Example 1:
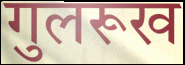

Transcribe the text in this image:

गुलरूख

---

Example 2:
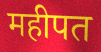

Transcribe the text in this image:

महीपत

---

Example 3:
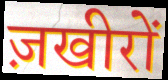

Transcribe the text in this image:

ज़खीरों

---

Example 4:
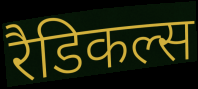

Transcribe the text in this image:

रैडिकल्स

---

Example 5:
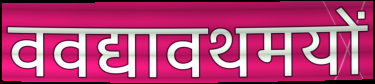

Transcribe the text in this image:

ववद्यावथमयों